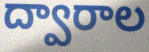
ద్వారాల